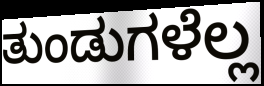
ತುಂಡುಗಳೆಲ್ಲ